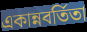
একান্নবর্তিতা